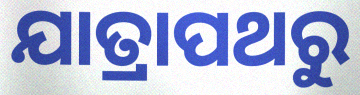
ଯାତ୍ରାପଥରୁ